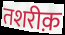
तशरीक़